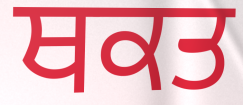
ਥਕਤ